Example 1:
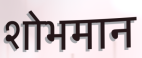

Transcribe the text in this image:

शोभमान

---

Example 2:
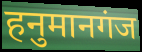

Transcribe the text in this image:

हनुमानगंज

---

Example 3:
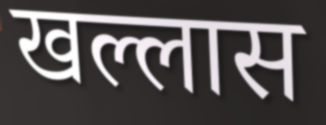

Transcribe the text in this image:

खल्लास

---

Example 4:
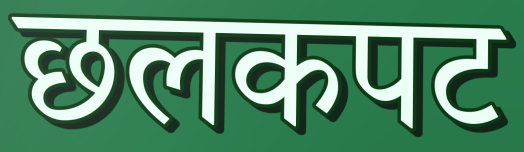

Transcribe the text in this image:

छलकपट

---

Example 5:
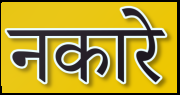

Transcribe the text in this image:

नकारे